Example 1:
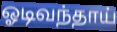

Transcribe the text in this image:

ஓடிவந்தாய்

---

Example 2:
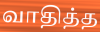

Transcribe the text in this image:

வாதித்த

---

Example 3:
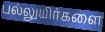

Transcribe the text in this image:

பல்லுயிர்களை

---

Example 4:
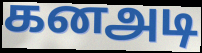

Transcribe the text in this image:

கனஅடி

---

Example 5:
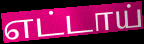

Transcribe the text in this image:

எட்டாய்